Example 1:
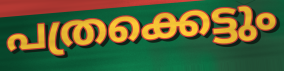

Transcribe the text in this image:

പത്രക്കെട്ടും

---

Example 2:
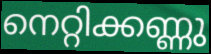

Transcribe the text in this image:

നെറ്റിക്കണ്ണു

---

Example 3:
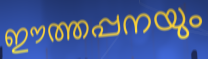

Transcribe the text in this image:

ഈത്തപ്പനയും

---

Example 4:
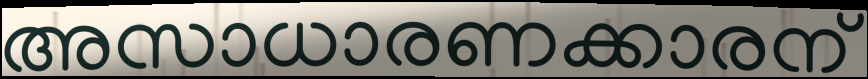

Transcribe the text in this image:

അസാധാരണക്കാരന്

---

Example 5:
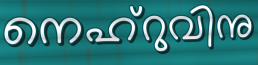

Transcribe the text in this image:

നെഹ്റുവിനു